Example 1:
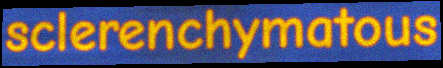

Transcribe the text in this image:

sclerenchymatous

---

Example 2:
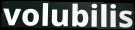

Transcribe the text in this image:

volubilis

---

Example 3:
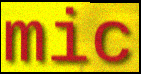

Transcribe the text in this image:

mic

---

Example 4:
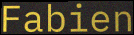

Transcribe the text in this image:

Fabien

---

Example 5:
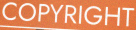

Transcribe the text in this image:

COPYRIGHT